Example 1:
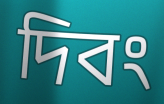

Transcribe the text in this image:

দিবং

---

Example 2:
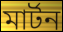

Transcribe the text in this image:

মার্টন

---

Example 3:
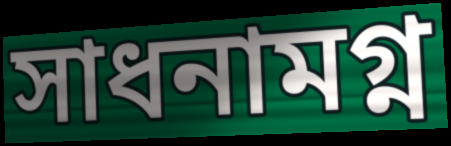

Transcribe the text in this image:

সাধনামগ্ন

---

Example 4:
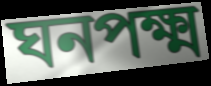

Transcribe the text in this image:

ঘনপক্ষ্ম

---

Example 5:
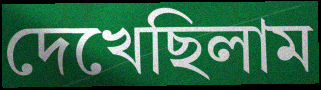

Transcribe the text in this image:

দেখেছিলাম